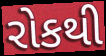
રોકથી